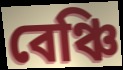
বেঞ্চি